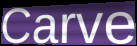
Carve